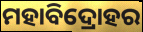
ମହାବିଦ୍ରୋହର